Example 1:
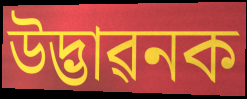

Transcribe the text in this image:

উদ্ভাৱনক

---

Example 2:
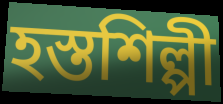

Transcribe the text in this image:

হস্তশিল্পী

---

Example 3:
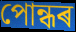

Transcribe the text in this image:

পোন্ধৰ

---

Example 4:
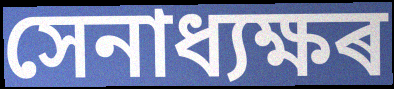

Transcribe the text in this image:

সেনাধ্যক্ষৰ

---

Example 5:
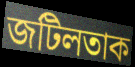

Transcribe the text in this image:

জটিলতাক